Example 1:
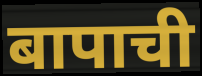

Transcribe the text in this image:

बापाची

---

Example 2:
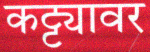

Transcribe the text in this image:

कट्ट्यावर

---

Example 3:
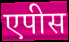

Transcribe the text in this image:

एपीस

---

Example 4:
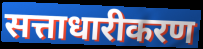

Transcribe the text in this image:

सत्ताधारीकरण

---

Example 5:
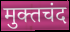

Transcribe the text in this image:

मुक्तचंद